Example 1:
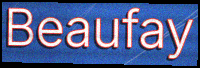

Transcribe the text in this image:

Beaufay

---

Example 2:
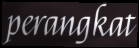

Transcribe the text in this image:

perangkat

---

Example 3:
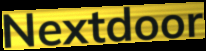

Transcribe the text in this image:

Nextdoor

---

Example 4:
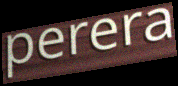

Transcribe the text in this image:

perera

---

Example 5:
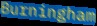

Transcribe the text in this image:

Burningham